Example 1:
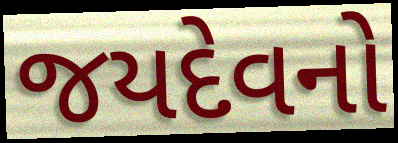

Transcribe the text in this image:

જયદેવનો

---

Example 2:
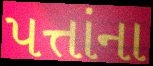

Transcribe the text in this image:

પત્તાંના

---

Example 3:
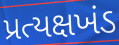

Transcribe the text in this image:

પ્રત્યક્ષખંડ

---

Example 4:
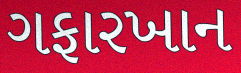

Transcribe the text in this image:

ગફારખાન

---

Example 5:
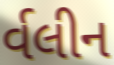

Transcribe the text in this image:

ર્વલીન